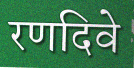
रणदिवे